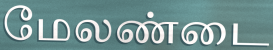
மேலண்டை